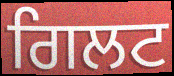
ਗਿਲਟ